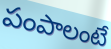
పంపాలంటే